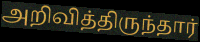
அறிவித்திருந்தார்